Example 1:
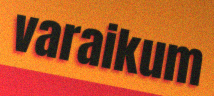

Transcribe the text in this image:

varaikum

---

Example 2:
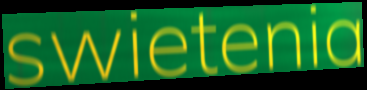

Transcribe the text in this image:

swietenia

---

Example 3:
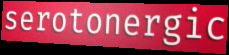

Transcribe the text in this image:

serotonergic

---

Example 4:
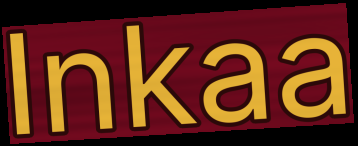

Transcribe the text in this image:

Inkaa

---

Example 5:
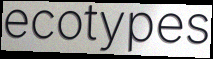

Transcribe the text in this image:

ecotypes